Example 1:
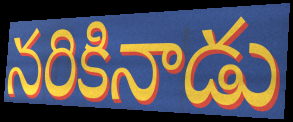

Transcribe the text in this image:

నరికినాడు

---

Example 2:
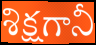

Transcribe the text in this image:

శిక్షగానీ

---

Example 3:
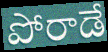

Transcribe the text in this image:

పోరాడే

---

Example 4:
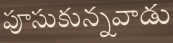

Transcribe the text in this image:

పూసుకున్నవాడు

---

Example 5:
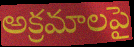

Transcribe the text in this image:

అక్రమాలపై